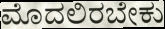
ಮೊದಲಿರಬೇಕು